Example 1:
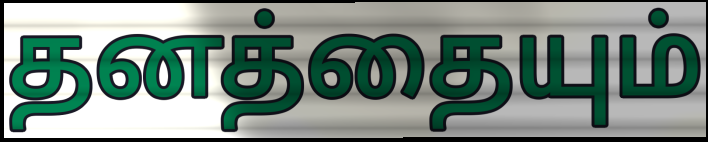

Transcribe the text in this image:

தனத்தையும்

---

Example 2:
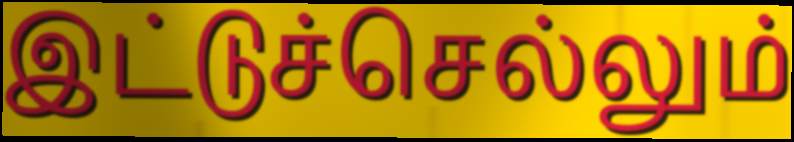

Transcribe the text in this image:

இட்டுச்செல்லும்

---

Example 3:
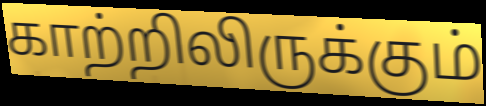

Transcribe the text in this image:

காற்றிலிருக்கும்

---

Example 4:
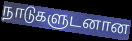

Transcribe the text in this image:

நாடுகளுடனான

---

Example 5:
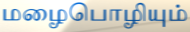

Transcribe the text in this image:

மழைபொழியும்